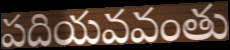
పదియవవంతు